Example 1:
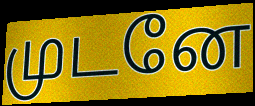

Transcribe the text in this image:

முடனே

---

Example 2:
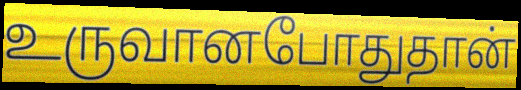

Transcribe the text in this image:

உருவானபோதுதான்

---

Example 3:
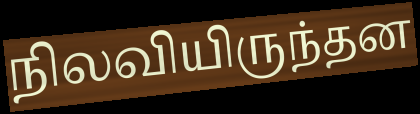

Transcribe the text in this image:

நிலவியிருந்தன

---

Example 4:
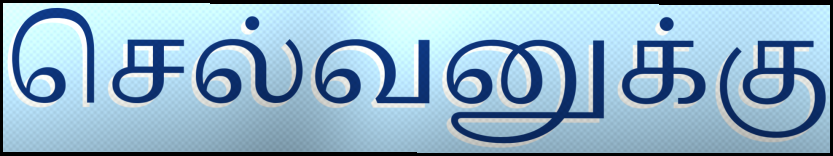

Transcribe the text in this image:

செல்வனுக்கு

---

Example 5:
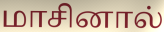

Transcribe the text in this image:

மாசினால்